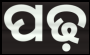
ପଢ଼